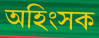
অহিংসক